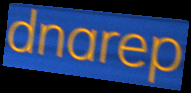
dnarep